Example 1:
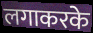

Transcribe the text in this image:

लगाकरके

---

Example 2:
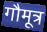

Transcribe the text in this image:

गौमूत्र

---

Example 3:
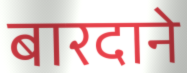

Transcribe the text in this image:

बारदाने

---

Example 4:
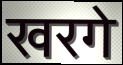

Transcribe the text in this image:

खरगे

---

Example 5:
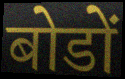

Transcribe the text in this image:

बोडों